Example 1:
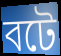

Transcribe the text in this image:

বটে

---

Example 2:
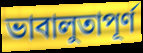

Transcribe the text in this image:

ভাবালুতাপূর্ণ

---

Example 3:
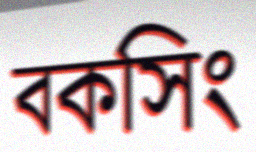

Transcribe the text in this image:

বকসিং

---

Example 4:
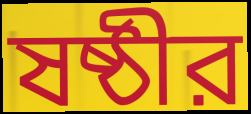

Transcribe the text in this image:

ষষ্ঠীর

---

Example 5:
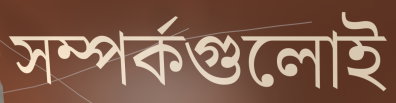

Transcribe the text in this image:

সম্পর্কগুলোই